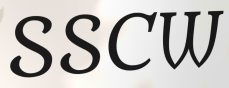
SSCW